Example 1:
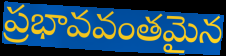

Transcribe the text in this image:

ప్రభావవంతమైన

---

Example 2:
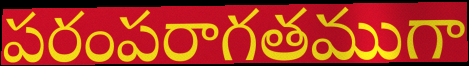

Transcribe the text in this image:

పరంపరాగతముగా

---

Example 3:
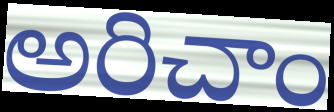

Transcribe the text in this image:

అరిచాం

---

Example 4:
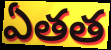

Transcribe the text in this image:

ఏతత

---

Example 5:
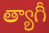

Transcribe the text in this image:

త్యాగీ